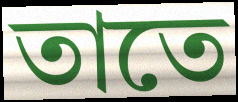
তাতে